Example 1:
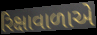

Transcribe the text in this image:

રિક્ષાવાળાએ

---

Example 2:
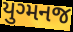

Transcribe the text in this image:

યુગ્મનજ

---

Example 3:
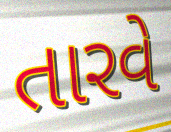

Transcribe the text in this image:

તારવે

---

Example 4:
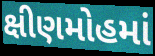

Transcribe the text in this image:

ક્ષીણમોહમાં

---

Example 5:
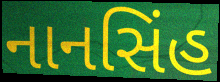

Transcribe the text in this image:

નાનસિંહ